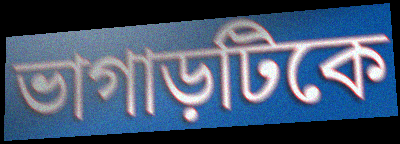
ভাগাড়টিকে